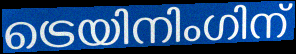
ട്രെയിനിംഗിന്